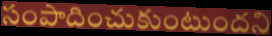
సంపాదించుకుంటుందని